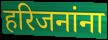
हरिजनांना